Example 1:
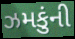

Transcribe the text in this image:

ઝમકુંની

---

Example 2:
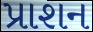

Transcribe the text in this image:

પ્રાશન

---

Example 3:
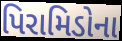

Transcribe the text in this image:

પિરામિડોના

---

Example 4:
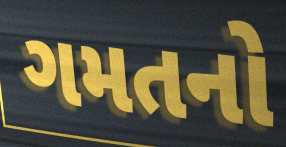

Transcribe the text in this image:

ગમતનો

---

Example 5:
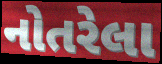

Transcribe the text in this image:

નોતરેલા